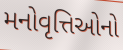
મનોવૃત્તિઓનો